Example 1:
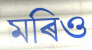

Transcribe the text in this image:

মৰিও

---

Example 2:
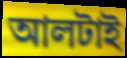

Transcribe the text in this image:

আলটাই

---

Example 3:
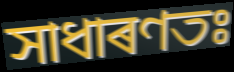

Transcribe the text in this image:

সাধাৰণতঃ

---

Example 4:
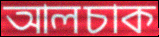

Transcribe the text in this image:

আলচাক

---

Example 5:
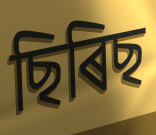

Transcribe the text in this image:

ছিৰিছ